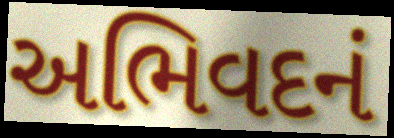
અભિવદનં